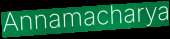
Annamacharya